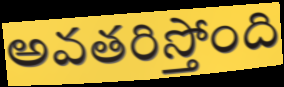
అవతరిస్తోంది